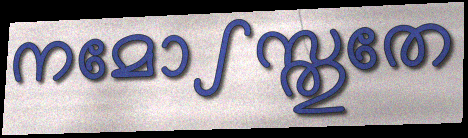
നമോഽസ്തുതേ